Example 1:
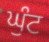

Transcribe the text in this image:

ਘੁੰਟ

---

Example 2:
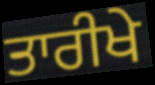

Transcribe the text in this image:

ਤਾਰੀਖੇ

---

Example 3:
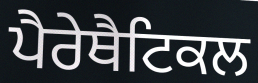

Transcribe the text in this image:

ਪੈਰੇਥੈਟਿਕਲ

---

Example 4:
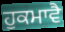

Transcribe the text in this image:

ਹੁਕਮਾਵੈ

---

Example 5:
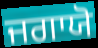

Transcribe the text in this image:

ਜਗਾਯੋ